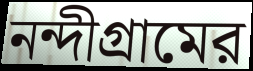
নন্দীগ্রামের